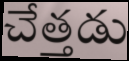
చేత్తడు